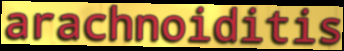
arachnoiditis